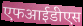
एफआईडीएस